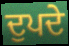
ਦੁਪਦੇ